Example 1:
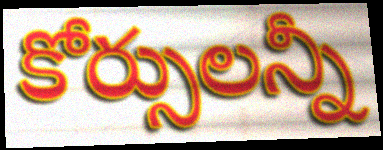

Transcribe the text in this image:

కోర్సులన్నీ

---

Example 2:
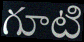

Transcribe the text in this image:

గూటి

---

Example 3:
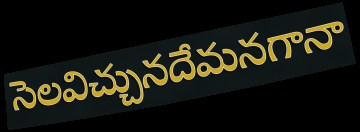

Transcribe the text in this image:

సెలవిచ్చునదేమనగానా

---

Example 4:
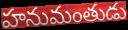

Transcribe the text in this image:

హనుమంతుడు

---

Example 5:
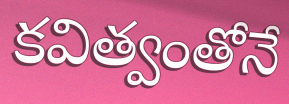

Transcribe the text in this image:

కవిత్వంతోనే